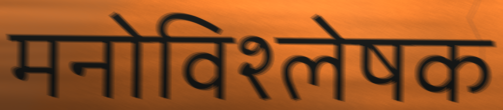
मनोविश्लेषक